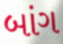
બાંગ